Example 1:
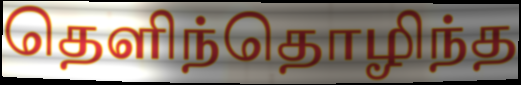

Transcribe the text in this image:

தெளிந்தொழிந்த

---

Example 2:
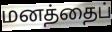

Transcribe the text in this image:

மனத்தைப்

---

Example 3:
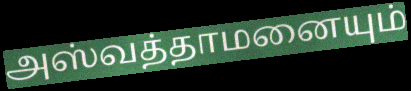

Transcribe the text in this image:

அஸ்வத்தாமனையும்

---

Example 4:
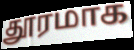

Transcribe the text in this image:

தூரமாக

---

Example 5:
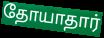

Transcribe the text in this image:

தோயாதார்